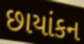
છાયાંકન